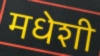
मधेशी